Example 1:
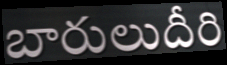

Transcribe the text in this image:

బారులుదీరి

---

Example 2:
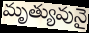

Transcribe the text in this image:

మృత్యువునై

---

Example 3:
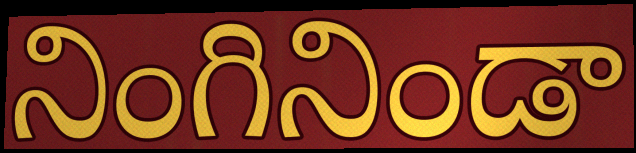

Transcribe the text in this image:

నింగినిండా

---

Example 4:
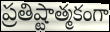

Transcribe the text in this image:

ప్రతిష్టాత్మకంగా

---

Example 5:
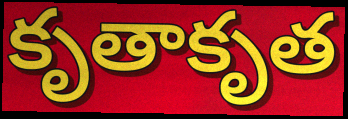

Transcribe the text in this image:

కృతాకృత